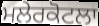
ਮਲੇਰਕੋਟਲਾ